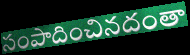
సంపాదించినదంతా